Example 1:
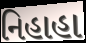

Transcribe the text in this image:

નિહાહા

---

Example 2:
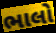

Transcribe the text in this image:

ભાલો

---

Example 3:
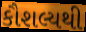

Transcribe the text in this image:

કૌશલ્યથી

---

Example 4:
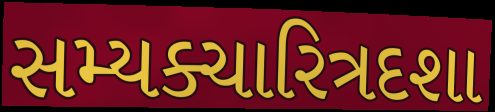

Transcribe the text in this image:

સમ્યક્ચારિત્રદશા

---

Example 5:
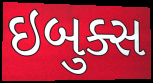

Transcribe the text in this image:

ઇબુક્સ